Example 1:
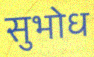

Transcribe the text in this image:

सुभोध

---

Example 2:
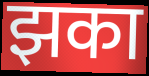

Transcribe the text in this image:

झका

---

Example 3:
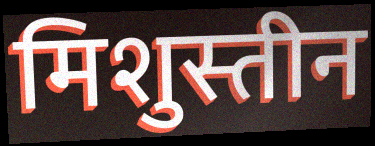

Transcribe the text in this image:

मिशुस्तीन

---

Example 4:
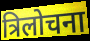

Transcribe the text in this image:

त्रिलोचना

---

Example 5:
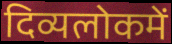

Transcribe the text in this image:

दिव्यलोकमें